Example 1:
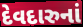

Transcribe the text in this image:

દેવદારુનાં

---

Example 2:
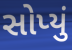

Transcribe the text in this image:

સોપ્યું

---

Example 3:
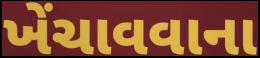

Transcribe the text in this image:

ખેંચાવવાના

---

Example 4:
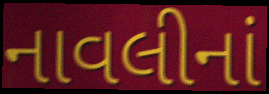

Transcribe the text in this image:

નાવલીનાં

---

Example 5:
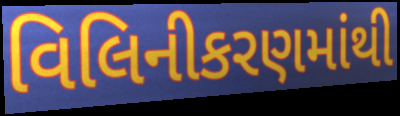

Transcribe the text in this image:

વિલિનીકરણમાંથી